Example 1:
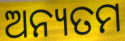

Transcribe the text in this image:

ଅନ୍ୟତମ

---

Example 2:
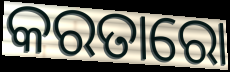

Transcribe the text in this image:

କରତାରୋ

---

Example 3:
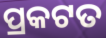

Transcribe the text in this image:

ପ୍ରକଟତ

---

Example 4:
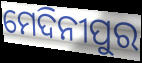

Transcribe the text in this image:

ମେଦିନୀପୁର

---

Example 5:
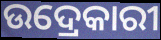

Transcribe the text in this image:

ଉଦ୍ରେକାରୀ